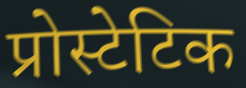
प्रोस्टेटिक